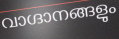
വാഗ്ദാനങ്ങളും